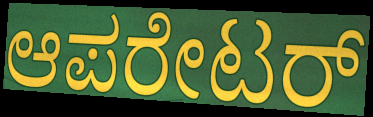
ಆಪರೇಟರ್